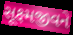
સૂક્ષ્મજીવને